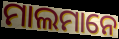
ମାଲମାନେ